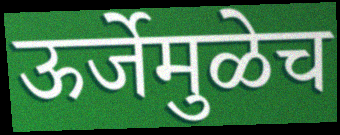
ऊर्जेमुळेच